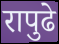
रापुढे